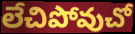
లేచిపోవుచో